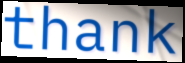
thank